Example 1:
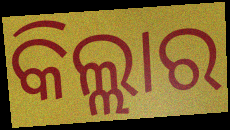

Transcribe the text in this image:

କିଲ୍ଲାର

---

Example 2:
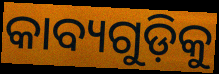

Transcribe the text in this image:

କାବ୍ୟଗୁଡ଼ିକୁ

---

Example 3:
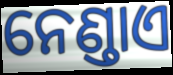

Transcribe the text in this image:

ନେଣ୍ଡାଏ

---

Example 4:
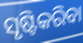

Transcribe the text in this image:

ସୃଷ୍ଟିକରିବା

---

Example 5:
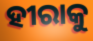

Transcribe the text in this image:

ହୀରାକୁ